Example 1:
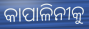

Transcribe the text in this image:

କାପାଳିନୀକୁ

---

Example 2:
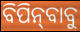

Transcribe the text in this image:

ବିପିନ୍‍ବାବୁ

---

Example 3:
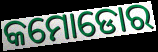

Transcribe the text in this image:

କମୋଡୋର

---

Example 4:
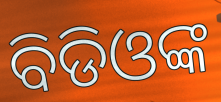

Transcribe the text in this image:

ବିଡିଓଙ୍କ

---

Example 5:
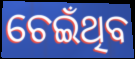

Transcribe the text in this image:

ଚେଇଁଥିବ